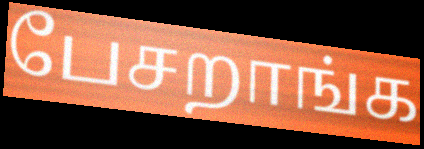
பேசறாங்க